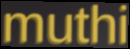
muthi